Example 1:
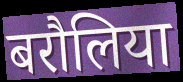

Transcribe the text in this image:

बरौलिया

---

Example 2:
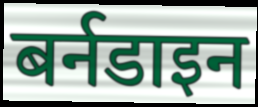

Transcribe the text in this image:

बर्नडाइन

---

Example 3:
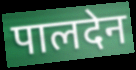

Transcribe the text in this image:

पालदेन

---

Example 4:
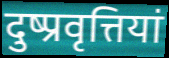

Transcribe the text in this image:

दुष्प्रवृत्तियां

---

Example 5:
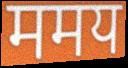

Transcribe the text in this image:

ममय